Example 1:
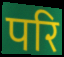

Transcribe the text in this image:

परि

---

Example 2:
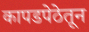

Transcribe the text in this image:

कापडपेठेतून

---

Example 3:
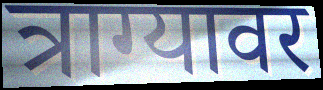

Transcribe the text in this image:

त्राग्यावर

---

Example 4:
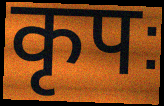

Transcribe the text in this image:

कृपः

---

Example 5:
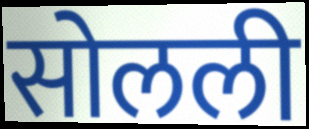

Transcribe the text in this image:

सोलली